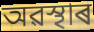
অৱস্থাৰ